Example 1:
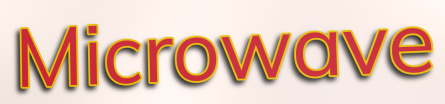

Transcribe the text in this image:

Microwave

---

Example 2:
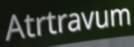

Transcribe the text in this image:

Atrtravum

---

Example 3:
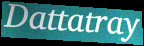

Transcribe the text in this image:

Dattatray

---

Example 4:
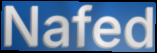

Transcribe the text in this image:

Nafed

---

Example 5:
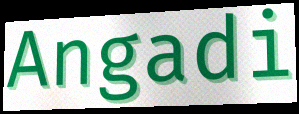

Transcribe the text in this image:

Angadi